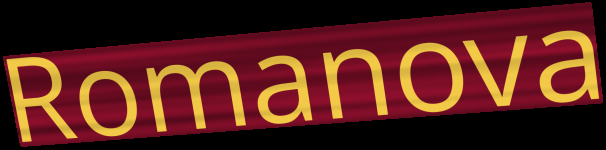
Romanova